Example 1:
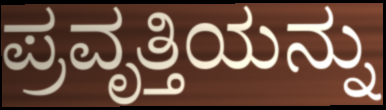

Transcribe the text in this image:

ಪ್ರವೃತ್ತಿಯನ್ನು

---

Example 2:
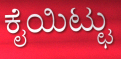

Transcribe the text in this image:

ಕೈಯಿಟ್ಟು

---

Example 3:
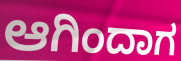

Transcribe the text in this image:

ಆಗಿಂದಾಗ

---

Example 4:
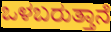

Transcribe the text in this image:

ಒಳಬರುತ್ತಾನೆ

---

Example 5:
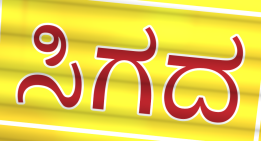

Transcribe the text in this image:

ಸಿಗದ